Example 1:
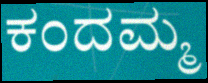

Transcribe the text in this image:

ಕಂದಮ್ಮ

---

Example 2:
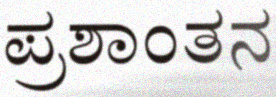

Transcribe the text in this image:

ಪ್ರಶಾಂತನ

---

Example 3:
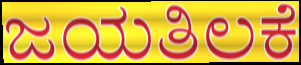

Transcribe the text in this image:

ಜಯತಿಲಕೆ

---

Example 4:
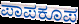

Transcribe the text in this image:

ಪಾಪಕೂಪ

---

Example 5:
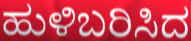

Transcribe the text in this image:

ಹುಳಿಬರಿಸಿದ